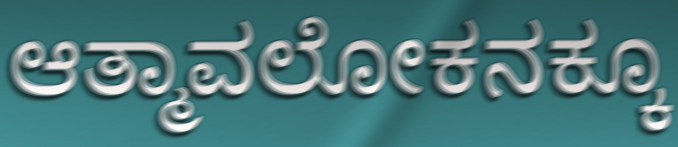
ಆತ್ಮಾವಲೋಕನಕ್ಕೂ